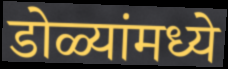
डोळ्यांमध्ये